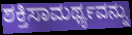
ಶಕ್ತಿಸಾಮರ್ಥ್ಯವನ್ನು